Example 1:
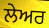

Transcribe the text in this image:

ਲੇਅਰ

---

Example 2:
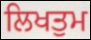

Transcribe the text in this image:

ਲਿਖਤੁਮ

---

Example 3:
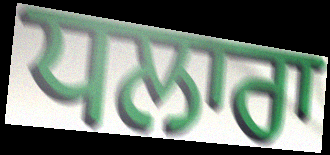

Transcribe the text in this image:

ਧਲਾਰਾ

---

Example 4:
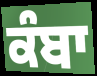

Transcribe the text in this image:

ਕੰਬਾ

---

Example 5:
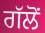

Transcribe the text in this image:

ਗੱਲੋਂ